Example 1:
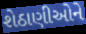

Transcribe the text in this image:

શેઠાણીઓને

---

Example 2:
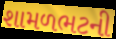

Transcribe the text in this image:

શામળભટની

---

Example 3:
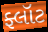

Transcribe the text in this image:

ફ્લૉટ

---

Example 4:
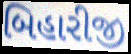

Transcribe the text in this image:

બિહારીજી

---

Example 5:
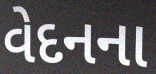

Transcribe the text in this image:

વેદનના